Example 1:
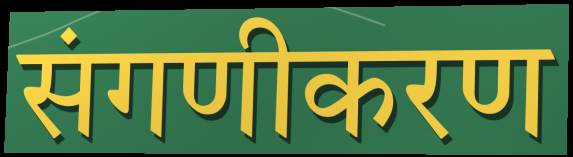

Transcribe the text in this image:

संगणीकरण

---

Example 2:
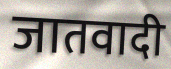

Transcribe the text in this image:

जातवादी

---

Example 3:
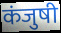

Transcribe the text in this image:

कंजुषी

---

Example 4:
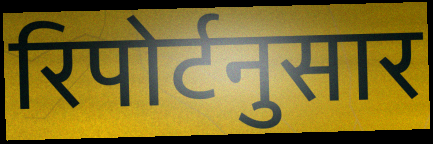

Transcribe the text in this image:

रिपोर्टनुसार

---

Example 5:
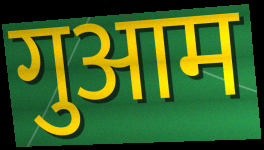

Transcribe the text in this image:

गुआम